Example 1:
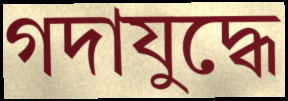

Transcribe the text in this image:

গদাযুদ্ধে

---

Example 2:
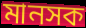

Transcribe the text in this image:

মানসক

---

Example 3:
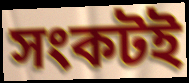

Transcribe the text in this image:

সংকটই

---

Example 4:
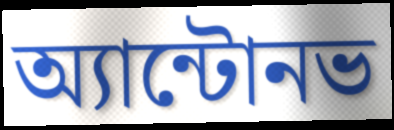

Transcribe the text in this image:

অ্যান্টোনভ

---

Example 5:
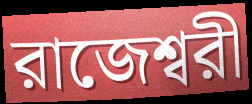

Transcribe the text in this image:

রাজেশ্বরী